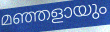
മഞ്ഞളായും